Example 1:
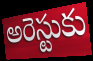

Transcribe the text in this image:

అరెస్టుకు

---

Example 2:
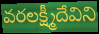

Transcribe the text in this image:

వరలక్ష్మీదేవిని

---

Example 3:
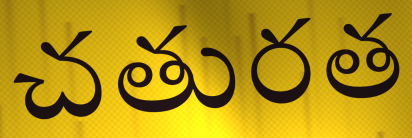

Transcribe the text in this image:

చతురత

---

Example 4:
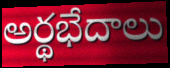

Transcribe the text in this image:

అర్థభేదాలు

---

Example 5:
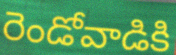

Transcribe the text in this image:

రెండోవాడికి